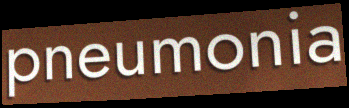
pneumonia